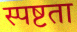
स्पष्टता